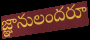
జ్ఞానులందరూ